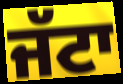
ਜੱਟਾ